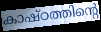
കാഷ്ഠത്തിന്റെ